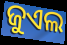
ଜୁଏଲ